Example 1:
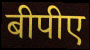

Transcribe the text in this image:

बीपीए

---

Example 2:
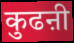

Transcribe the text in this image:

कुढऩी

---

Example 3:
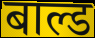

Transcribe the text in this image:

बाल्ड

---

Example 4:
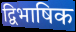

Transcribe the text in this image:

द्विभाषिक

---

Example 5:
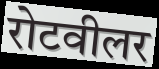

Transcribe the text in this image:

रोटवीलर